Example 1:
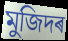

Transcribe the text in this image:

মুজিদৰ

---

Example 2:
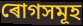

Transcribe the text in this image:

ৰোগসমূহ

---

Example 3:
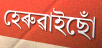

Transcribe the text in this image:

হেৰুৱাইছোঁ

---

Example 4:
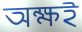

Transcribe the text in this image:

অক্ষই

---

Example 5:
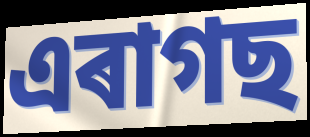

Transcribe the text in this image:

এৰাগছ